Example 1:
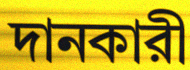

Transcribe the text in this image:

দানকারী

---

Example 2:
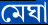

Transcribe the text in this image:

মেঘা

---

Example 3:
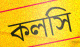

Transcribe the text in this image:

কলসি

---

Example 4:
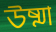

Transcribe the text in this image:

উষ্মা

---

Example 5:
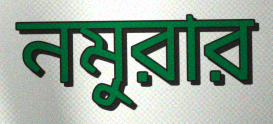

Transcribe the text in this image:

নমুরার